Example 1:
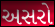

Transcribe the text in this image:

અસરો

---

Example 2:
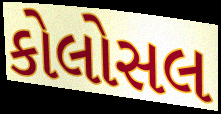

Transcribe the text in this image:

કોલોસલ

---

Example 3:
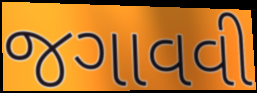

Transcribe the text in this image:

જગાવવી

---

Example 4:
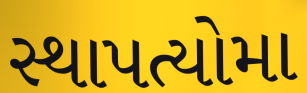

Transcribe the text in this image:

સ્થાપત્યોમા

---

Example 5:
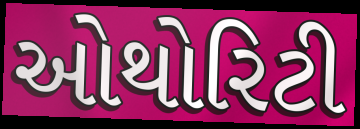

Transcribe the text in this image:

ઓથોરિટી